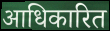
आधिकारित